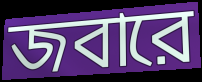
জবারে